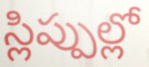
స్లిప్పుల్లో